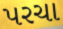
પરચા